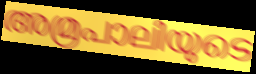
അമ്രപാലിയുടെ